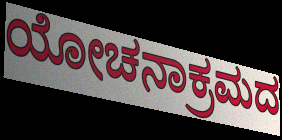
ಯೋಚನಾಕ್ರಮದ